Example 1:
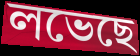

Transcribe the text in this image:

লভেছে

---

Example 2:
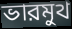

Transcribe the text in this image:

ভারমুথ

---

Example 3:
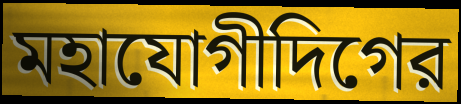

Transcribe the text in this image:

মহাযোগীদিগের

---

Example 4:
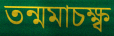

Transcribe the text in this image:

তন্মমাচক্ষ্ব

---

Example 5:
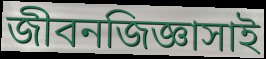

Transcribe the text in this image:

জীবনজিজ্ঞাসাই